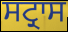
ਸਟ੍ਰਾਸ